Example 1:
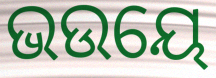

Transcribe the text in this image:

ଭଉୟେ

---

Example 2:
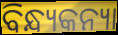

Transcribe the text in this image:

ବିନ୍ଧ୍ୟକନ୍ୟା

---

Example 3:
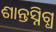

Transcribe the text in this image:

ଶାନ୍ତସ୍ନିଗ୍ଧ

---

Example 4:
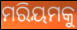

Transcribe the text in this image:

ମରିୟମକୁ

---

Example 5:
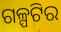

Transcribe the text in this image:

ଗଳ୍ପଟିର